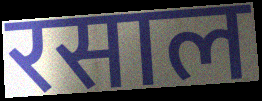
रसाल